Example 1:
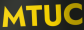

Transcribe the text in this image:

MTUC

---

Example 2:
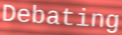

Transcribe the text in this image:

Debating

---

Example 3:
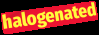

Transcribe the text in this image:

halogenated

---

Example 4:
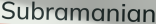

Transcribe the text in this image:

Subramanian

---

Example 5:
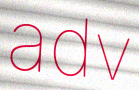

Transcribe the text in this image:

adv